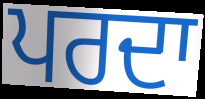
ਪਰਦਾ